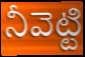
నీవెట్టి